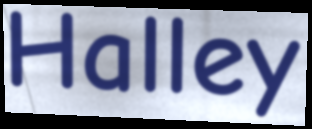
Halley